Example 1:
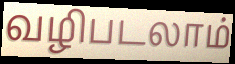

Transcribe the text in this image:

வழிபடலாம்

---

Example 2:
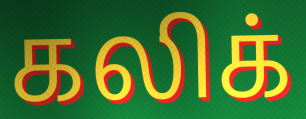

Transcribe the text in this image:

கலிக்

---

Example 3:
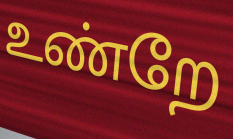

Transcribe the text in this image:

உண்றே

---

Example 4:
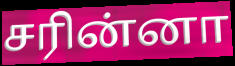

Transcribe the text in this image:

சரின்னா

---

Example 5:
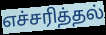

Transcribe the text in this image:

எச்சரித்தல்